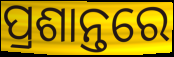
ପ୍ରଶାନ୍ତରେ